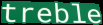
treble